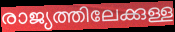
രാജ്യത്തിലേക്കുള്ള